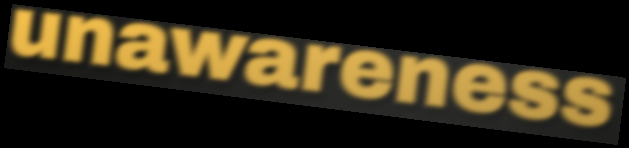
unawareness